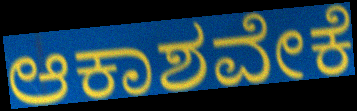
ಆಕಾಶವೇಕೆ